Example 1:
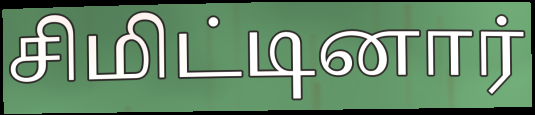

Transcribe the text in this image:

சிமிட்டினார்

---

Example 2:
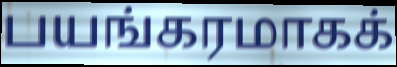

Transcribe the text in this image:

பயங்கரமாகக்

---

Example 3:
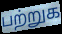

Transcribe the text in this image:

பற்றுக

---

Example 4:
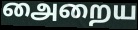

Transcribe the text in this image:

அைறைய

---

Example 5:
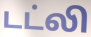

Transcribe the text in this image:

டட்லி